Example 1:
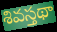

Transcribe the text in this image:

శివస్తథా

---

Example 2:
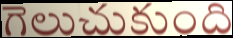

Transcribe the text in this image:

గెలుచుకుంది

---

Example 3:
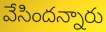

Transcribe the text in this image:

వేసిందన్నారు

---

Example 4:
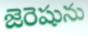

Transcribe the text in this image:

జెరెషును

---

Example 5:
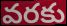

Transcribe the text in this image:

వరకు